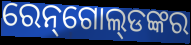
ରେନ୍‌ଗୋଲ୍‌ଡଙ୍କର